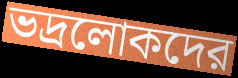
ভদ্রলোকদের